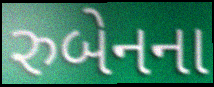
રુબેનના